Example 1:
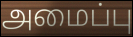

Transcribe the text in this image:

அமைப்பு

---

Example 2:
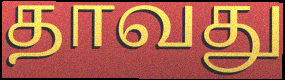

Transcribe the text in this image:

தாவது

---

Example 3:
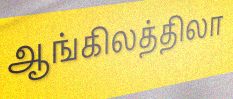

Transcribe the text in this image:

ஆங்கிலத்திலா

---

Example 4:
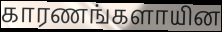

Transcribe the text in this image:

காரணங்களாயின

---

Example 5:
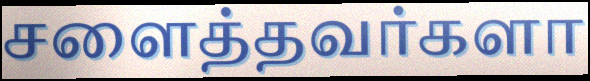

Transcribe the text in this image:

சளைத்தவர்களா